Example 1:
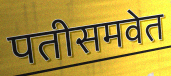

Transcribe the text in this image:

पतीसमवेत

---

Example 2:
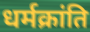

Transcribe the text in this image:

धर्मक्रांति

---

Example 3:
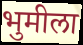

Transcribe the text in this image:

भुमीला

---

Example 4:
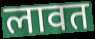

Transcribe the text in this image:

लावत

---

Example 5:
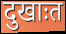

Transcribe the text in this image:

दुखाःत